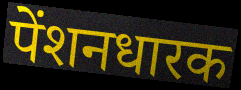
पेंशनधारक